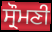
ਸ੍ਰੌਮਣੀ